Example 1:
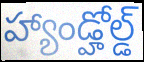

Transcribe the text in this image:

హ్యాండ్హోల్డ్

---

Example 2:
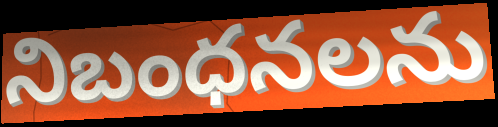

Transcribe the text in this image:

నిబంధనలను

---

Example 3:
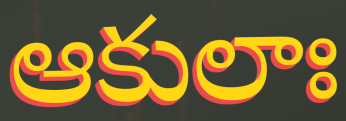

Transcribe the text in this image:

ఆకులాః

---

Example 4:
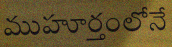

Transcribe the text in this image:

ముహూర్తంలోనే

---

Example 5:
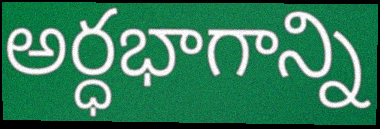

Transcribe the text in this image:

అర్ధభాగాన్ని